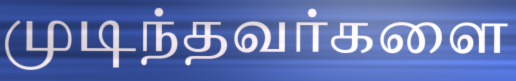
முடிந்தவர்களை